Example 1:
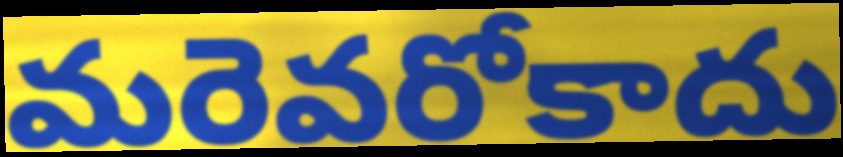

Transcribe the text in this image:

మరెవరోకాదు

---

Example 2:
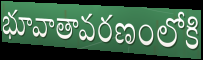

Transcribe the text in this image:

భూవాతావరణంలోకి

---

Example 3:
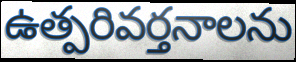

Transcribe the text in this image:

ఉత్పరివర్తనాలను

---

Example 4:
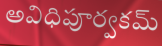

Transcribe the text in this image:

అవిధిపూర్వకమ్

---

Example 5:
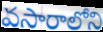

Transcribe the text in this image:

వసారాలోని